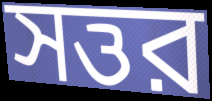
সত্তর